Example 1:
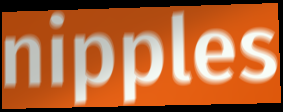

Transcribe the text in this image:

nipples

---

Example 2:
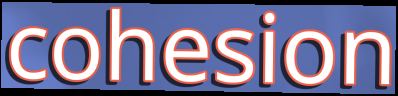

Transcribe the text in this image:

cohesion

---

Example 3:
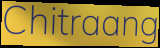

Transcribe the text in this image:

Chitraang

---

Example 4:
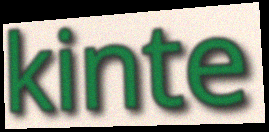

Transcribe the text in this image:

kinte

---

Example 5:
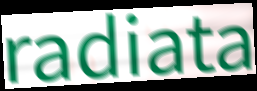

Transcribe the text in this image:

radiata